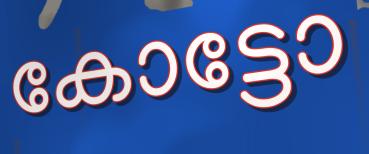
കോട്ടോ